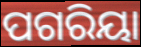
ପଗରିୟା